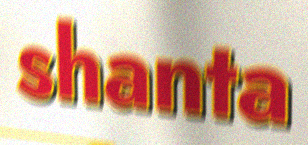
shanta